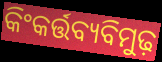
କିଂକର୍ତ୍ତବ୍ୟବିମୁଢ଼